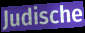
Judische